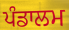
ਪੰਡਾਲਮ